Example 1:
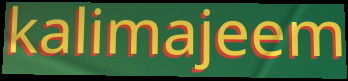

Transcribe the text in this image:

kalimajeem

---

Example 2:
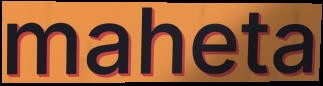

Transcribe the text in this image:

maheta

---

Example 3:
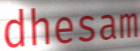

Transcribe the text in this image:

dhesam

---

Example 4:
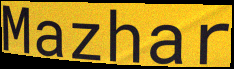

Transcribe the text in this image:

Mazhar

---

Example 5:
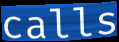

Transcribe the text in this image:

calls